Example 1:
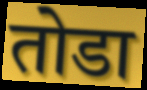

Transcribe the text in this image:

तोडा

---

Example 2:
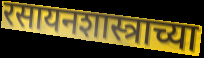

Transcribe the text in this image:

रसायनशास्त्राच्या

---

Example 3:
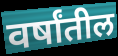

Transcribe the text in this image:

वर्षांतील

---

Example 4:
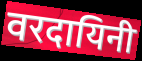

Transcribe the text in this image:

वरदायिनी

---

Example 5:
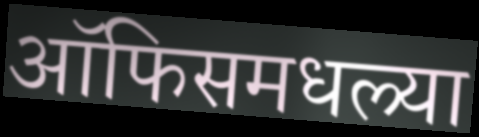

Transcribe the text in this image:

ऑफिसमधल्या